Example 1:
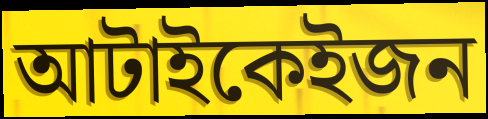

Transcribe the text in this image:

আটাইকেইজন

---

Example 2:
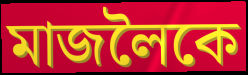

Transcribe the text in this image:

মাজলৈকে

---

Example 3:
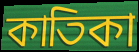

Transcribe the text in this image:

কাতিকা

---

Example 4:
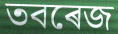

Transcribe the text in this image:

তবৰেজ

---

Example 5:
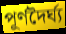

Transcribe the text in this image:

পূৰ্ণদৈৰ্ঘ্য